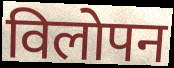
विलोपन